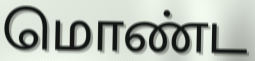
மொண்ட